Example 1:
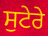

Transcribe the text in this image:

ਸੁਟੇਰੇ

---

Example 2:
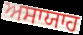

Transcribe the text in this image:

ਅਸਾਯਾਹ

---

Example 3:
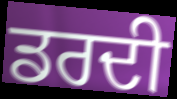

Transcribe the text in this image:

ਡਰਦੀ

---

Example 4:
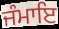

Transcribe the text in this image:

ਜੰਮਾਇ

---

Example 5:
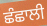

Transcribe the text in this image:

ਛੰਛਾਲੀ